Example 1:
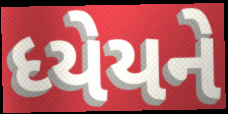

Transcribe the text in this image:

ધ્યેયને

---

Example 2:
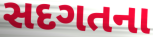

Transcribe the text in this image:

સદગતના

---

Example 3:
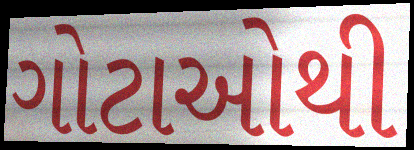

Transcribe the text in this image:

ગોટાઓથી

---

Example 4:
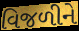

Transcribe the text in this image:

વિજળીને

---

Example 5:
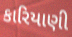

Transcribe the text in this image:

કારિયાણી